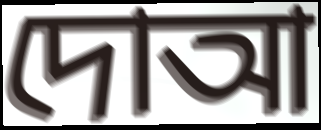
দোআ